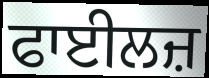
ਫਾਈਲਜ਼